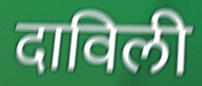
दाविली